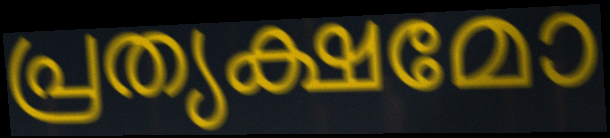
പ്രത്യക്ഷമോ